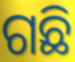
ଗଛି